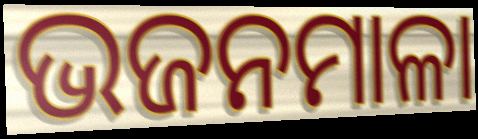
ଭଜନମାଳା